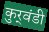
कुर्वंडी